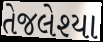
તેજલેશ્યા